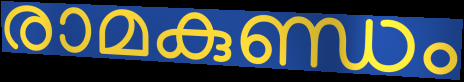
രാമകുണ്ഡം